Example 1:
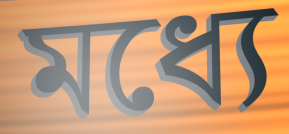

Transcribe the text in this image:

মধ্যে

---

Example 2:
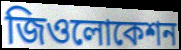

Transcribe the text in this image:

জিওলোকেশন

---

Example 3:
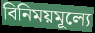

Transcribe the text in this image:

বিনিময়মূল্যে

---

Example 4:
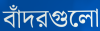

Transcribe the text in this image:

বাঁদরগুলো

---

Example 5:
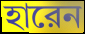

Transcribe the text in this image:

হারেন